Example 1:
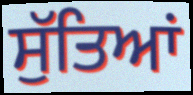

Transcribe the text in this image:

ਸੁੱਤਿਆਂ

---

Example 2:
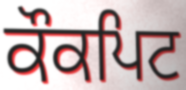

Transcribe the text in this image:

ਕੌਕਪਿਟ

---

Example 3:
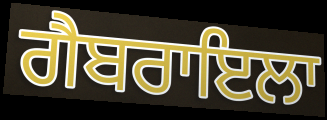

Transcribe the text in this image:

ਗੈਬਰਾਇਲਾ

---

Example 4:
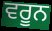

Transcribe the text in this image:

ਵਰੂਨ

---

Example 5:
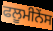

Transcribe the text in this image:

ਫਲੂਮੀਨੇਂਸ